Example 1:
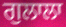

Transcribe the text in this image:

ਗੁਲਾਲਾ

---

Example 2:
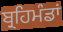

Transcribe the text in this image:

ਬ੍ਰਹਿਮੰਡਾਂ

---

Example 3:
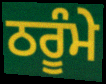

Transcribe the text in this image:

ਠਰੂੰਮੇ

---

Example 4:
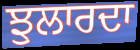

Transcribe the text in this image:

ਝੁਲਾਰਦਾ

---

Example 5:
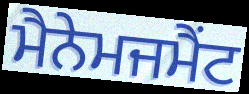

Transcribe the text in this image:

ਮੈਨੇਮਜਮੈਂਟ